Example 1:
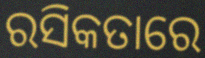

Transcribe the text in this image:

ରସିକତାରେ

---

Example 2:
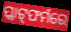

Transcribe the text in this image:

ପ୍ଲାଟ୍‌ଫର୍ମରେ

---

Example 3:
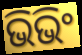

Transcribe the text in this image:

ଭିଭିଂ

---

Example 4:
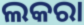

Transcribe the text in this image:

ଲକରା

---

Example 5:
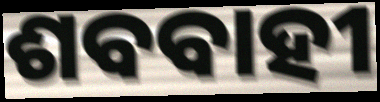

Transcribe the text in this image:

ଶବବାହୀ